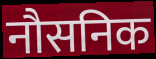
नौसनिक